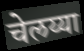
चेलय्या